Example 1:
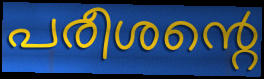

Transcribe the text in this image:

പരീശന്റെ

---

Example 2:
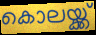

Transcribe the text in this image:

കൊലയ്ക്ക്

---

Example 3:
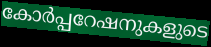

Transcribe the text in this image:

കോർപ്പറേഷനുകളുടെ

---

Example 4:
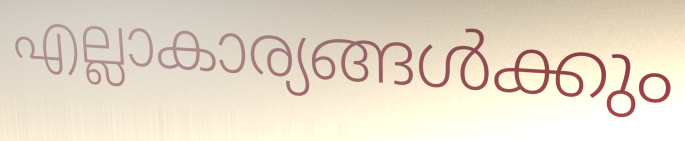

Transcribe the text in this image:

എല്ലാകാര്യങ്ങൾക്കും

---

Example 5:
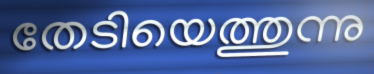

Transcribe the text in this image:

തേടിയെത്തുന്നു